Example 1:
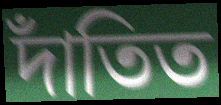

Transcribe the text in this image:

দাঁতিত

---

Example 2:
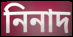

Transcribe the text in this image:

নিনাদ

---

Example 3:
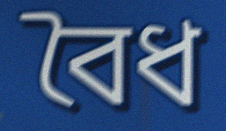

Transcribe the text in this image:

বৈধ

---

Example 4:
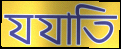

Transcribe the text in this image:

যযাতি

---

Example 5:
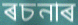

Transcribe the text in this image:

ৰচনাৰ